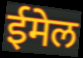
ईमेल